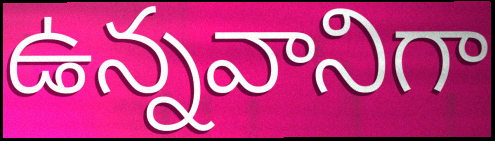
ఉన్నవానిగా